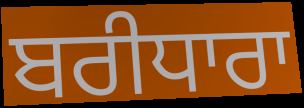
ਬਰੀਧਾਰਾ